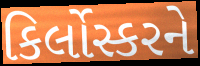
કિર્લોસ્કરને